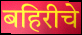
बहिरीचे